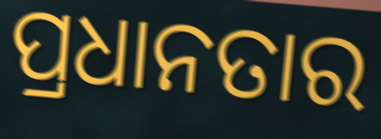
ପ୍ରଧାନତାର